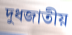
দুধজাতীয়